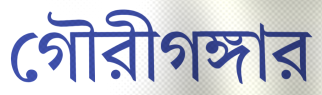
গৌরীগঙ্গার